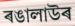
ৰঙালাউৰ